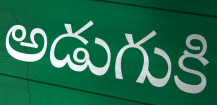
అడుగుకి